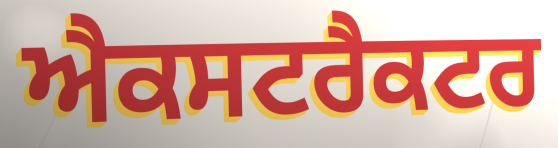
ਐਕਸਟਰੈਕਟਰ